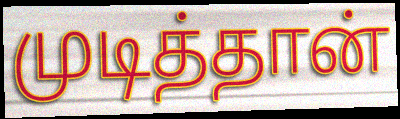
முடித்தான்